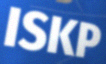
ISKP